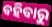
ବହିବାରୁ